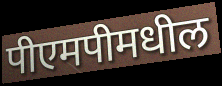
पीएमपीमधील